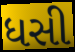
ધસી